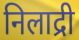
निलाद्री